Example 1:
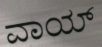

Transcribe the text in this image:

ವಾಯ್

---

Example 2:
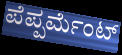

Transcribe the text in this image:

ಪೆಪ್ಪರ್ಮೆಂಟ್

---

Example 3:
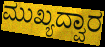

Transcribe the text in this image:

ಮುಖ್ಯದ್ವಾರ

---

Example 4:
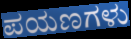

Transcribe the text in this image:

ಪಯಣಗಳು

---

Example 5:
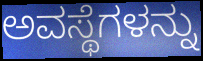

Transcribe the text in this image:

ಅವಸ್ಥೆಗಳನ್ನು